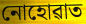
নোহোৱাত